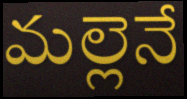
మల్లెనే